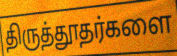
திருத்தூதர்களை